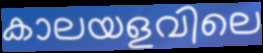
കാലയളവിലെ